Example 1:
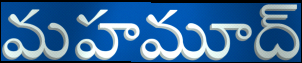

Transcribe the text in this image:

మహమూద్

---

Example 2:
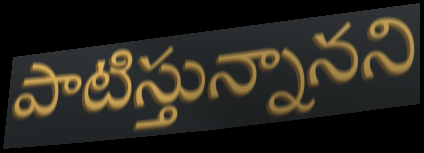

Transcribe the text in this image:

పాటిస్తున్నానని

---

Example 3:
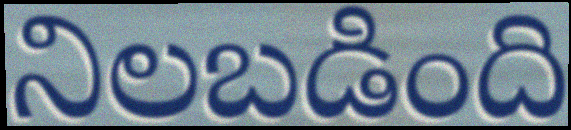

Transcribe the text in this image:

నిలబడింది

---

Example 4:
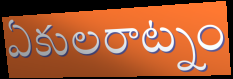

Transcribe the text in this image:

ఏకులరాట్నం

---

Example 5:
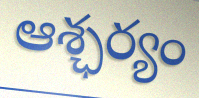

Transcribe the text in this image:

ఆశ్ఛర్యం